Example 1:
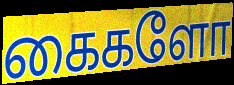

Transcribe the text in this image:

கைகளோ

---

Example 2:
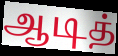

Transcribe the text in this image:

ஆடித்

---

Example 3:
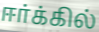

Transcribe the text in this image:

ஈர்க்கில்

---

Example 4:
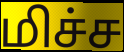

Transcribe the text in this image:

மிச்ச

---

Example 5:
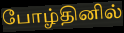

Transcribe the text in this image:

போழ்தினில்